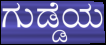
ಗುಡ್ಡೆಯ